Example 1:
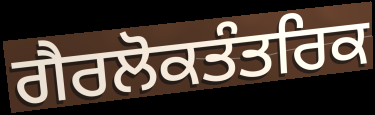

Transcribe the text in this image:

ਗੈਰਲੋਕਤੰਤਰਿਕ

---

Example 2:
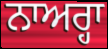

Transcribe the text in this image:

ਨਾਅਰ੍ਹਾ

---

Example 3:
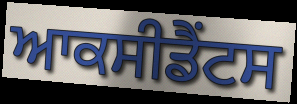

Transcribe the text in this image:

ਆਕਸੀਡੈਂਟਸ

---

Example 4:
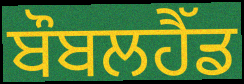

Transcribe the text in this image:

ਬੌਬਲਹੈੱਡ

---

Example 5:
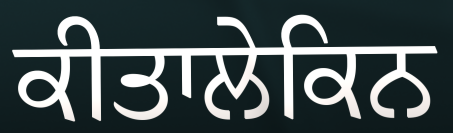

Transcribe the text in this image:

ਕੀਤਾਲੇਕਿਨ